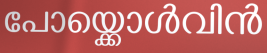
പോയ്ക്കൊൾവിൻ